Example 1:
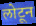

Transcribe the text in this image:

लोटून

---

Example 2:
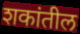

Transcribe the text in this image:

शकांतील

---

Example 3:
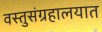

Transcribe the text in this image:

वस्तुसंग्रहालयात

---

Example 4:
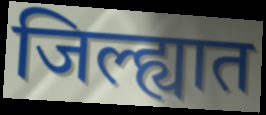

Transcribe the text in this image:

जिल्ह्यात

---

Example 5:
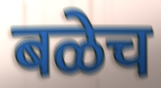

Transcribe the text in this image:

बळेच